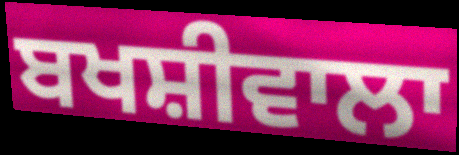
ਬਖਸ਼ੀਵਾਲਾ